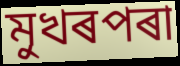
মুখৰপৰা